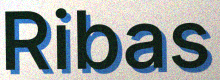
Ribas